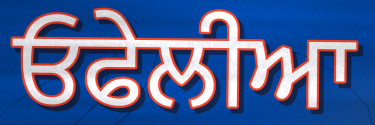
ਓਫੇਲੀਆ